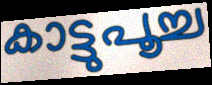
കാട്ടുപൂച്ച